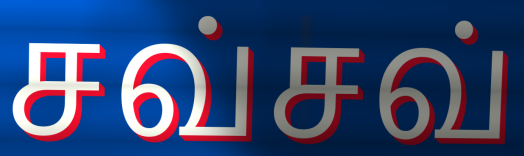
சவ்சவ்